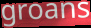
groans